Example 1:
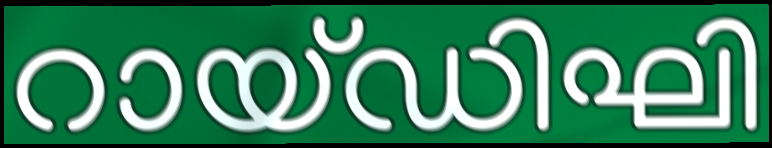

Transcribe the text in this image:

റായ്ഡിഘി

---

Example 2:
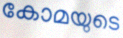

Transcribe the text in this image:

കോമയുടെ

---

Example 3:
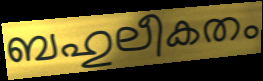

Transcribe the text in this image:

ബഹുലീകതം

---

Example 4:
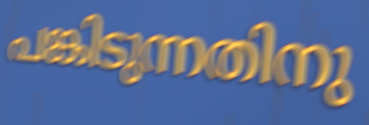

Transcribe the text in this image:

പങ്കിടുന്നതിനു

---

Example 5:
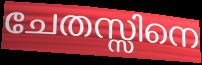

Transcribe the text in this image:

ചേതസ്സിനെ